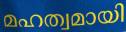
മഹത്വമായി